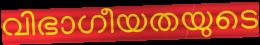
വിഭാഗീയതയുടെ